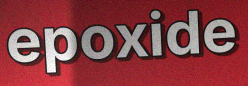
epoxide